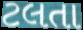
ટલતા